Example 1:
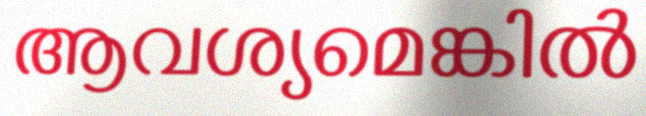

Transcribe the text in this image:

ആവശ്യമെങ്കിൽ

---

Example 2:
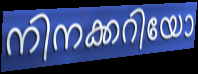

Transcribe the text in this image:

നിനക്കറിയോ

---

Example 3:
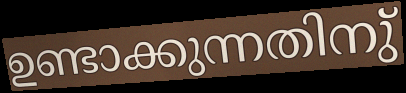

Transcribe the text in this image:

ഉണ്ടാക്കുന്നതിനു്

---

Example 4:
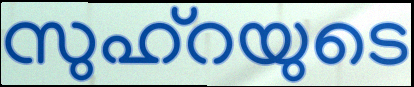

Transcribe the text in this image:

സുഹ്റയുടെ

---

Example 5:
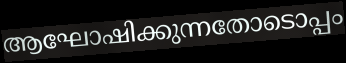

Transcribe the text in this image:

ആഘോഷിക്കുന്നതോടൊപ്പം